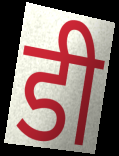
डी